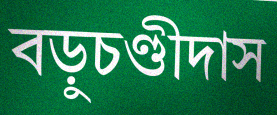
বড়ুচণ্ডীদাস